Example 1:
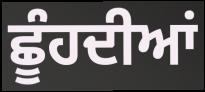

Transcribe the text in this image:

ਛੂੰਹਦੀਆਂ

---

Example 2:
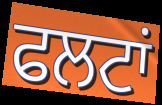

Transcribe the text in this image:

ਫਲਟਾਂ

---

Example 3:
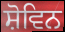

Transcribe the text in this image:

ਸ਼ੋਵਿਨ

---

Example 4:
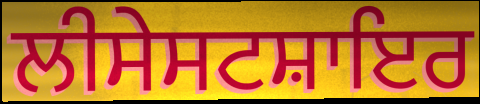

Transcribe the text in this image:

ਲੀਸੇਸਟਸ਼ਾਇਰ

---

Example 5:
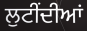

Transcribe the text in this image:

ਲੁਟੀਂਦੀਆਂ